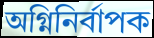
অগ্নিনির্বাপক